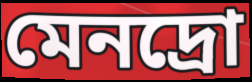
মেনদ্রো